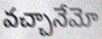
వచ్చానేమో